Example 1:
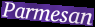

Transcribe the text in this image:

Parmesan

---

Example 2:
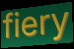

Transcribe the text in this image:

fiery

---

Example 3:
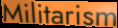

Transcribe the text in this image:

Militarism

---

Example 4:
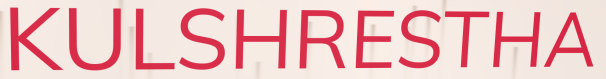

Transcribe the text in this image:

KULSHRESTHA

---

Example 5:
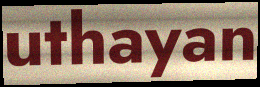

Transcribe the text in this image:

uthayan